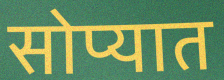
सोप्यात